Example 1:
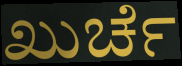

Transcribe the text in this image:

ಖುರ್ಚೆ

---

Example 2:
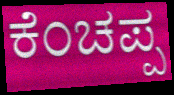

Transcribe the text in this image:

ಕೆಂಚಪ್ಪ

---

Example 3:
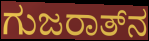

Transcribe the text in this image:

ಗುಜರಾತ್‍ನ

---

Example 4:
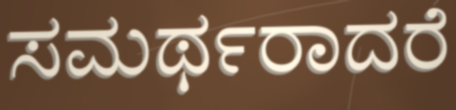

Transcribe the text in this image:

ಸಮರ್ಥರಾದರೆ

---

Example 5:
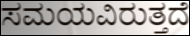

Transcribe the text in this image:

ಸಮಯವಿರುತ್ತದೆ